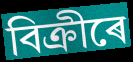
বিক্ৰীৰে